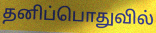
தனிப்பொதுவில்